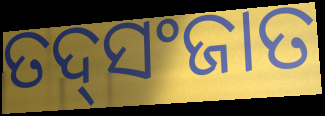
ତଦ୍‌ସଂଜାତ